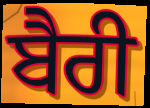
ਬੈਰੀ